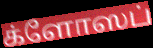
க்ளோஸப்